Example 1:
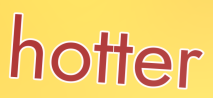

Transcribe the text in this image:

hotter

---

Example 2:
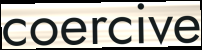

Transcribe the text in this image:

coercive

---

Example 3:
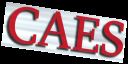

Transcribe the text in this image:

CAES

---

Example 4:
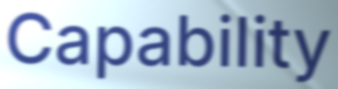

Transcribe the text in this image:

Capability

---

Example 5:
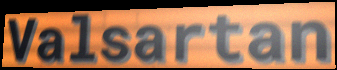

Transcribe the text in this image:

Valsartan